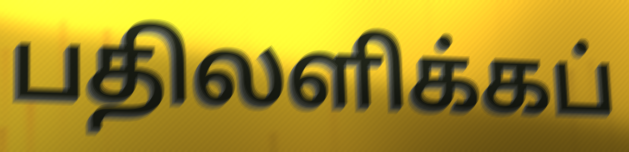
பதிலளிக்கப்